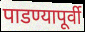
पाडण्यापूर्वी